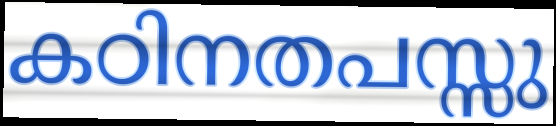
കഠിനതപസ്സു